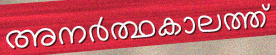
അനർത്ഥകാലത്ത്